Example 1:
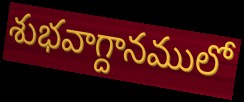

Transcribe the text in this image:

శుభవాగ్దానములో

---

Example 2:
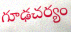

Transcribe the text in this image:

గూఢచర్యం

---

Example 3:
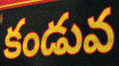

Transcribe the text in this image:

కండువ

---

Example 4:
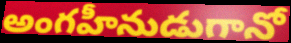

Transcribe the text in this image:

అంగహీనుడుగానో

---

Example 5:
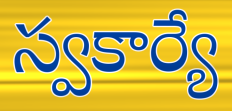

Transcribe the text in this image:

స్వకార్యే